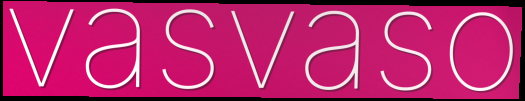
vasvaso